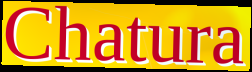
Chatura